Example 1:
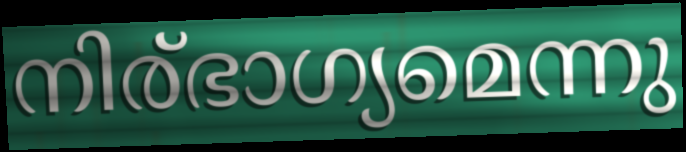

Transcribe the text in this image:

നിര്ഭാഗ്യമെന്നു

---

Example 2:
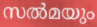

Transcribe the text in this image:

സൽമയും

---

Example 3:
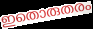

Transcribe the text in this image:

ഇതൊരുതരം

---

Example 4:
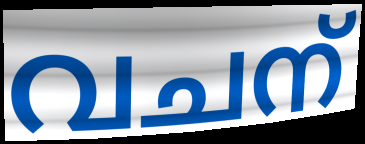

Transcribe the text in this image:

വചന്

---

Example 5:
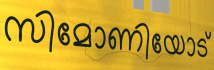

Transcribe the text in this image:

സിമോണിയോട്